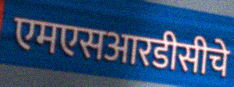
एमएसआरडीसीचे